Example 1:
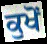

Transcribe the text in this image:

ਕੁਖੋਂ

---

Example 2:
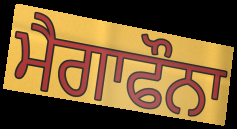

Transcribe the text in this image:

ਮੈਗਾਫੌਨਾ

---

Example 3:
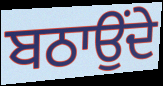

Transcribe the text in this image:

ਬਠਾਉਂਦੇ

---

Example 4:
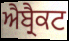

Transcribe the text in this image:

ਐਬ੍ਰੈਕਟ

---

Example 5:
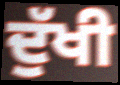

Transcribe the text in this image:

ਦੁੱਖੀ